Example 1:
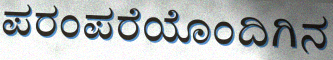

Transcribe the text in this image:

ಪರಂಪರೆಯೊಂದಿಗಿನ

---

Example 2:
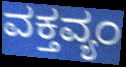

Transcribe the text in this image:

ವಕ್ತವ್ಯಂ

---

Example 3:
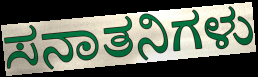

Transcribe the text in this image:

ಸನಾತನಿಗಳು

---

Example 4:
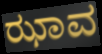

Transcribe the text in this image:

ಝಾವ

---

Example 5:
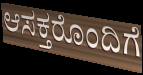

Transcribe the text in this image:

ಆಸಕ್ತರೊಂದಿಗೆ